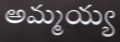
అమ్మయ్య